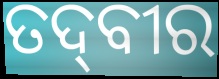
ତଦ୍‌ବୀର